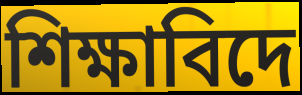
শিক্ষাবিদে